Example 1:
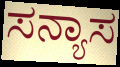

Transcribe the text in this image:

ಸನ್ಯಾಸ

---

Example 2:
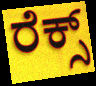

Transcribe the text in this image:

ರೆಕ್ಸ್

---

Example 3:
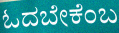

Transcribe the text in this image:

ಓದಬೇಕೆಂಬ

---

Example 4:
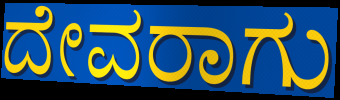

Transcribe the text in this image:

ದೇವರಾಗು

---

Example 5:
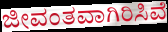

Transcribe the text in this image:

ಜೀವಂತವಾಗಿರಿಸಿವೆ